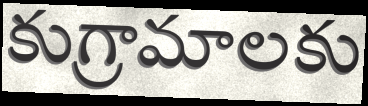
కుగ్రామాలకు